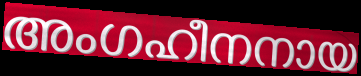
അംഗഹീനനായ